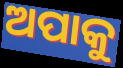
ଅପାକୁ